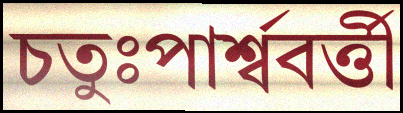
চতুঃপার্শ্ববর্ত্তী